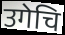
उगेचि